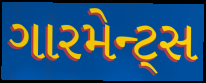
ગારમેન્ટ્સ